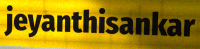
jeyanthisankar